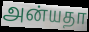
அன்யதா